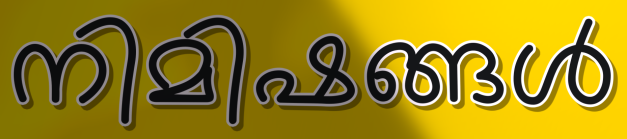
നിമിഷങ്ങൾ